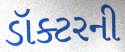
ડૉક્ટરની